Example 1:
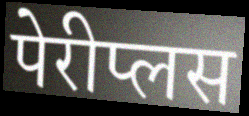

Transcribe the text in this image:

पेरीप्लस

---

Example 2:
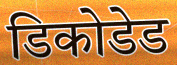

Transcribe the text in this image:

डिकोडेड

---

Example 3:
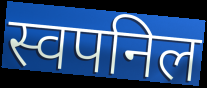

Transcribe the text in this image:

स्वपनिल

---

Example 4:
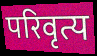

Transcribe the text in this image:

परिवृत्य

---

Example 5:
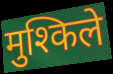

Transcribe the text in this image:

मुश्किले